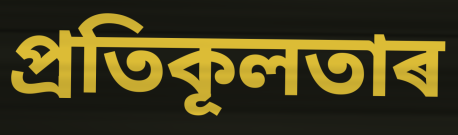
প্ৰতিকূলতাৰ